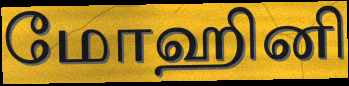
மோஹினி